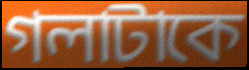
গলাটাকে